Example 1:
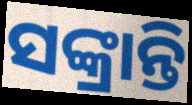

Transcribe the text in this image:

ସଙ୍କ୍ରାନ୍ତି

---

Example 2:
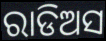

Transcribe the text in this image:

ରାଡିଅସ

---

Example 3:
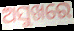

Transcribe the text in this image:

ଅସୁଖରେ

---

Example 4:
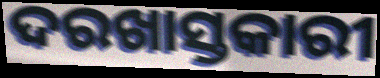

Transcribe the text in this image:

ଦରଖାସ୍ତକାରୀ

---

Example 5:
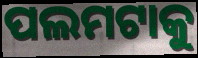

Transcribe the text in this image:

ପଲମଟାକୁ